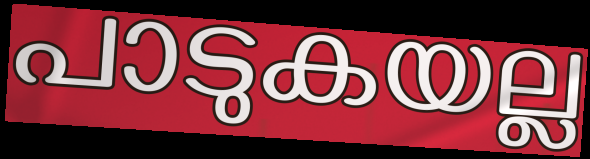
പാടുകയല്ല